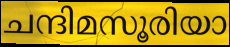
ചന്ദിമസൂരിയാ